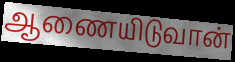
ஆணையிடுவான்